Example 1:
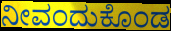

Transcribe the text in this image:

ನೀವಂದುಕೊಂಡ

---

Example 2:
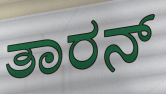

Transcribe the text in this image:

ತಾರನ್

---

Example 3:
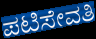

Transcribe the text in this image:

ಪಟಿಸೇವತಿ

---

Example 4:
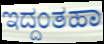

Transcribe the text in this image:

ಇದ್ದಂತಹಾ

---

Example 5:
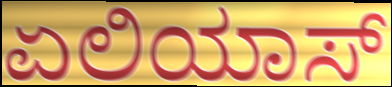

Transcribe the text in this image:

ಏಲಿಯಾಸ್